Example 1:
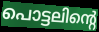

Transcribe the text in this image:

പൊട്ടലിന്റെ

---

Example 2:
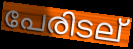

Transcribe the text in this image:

പേരിടല്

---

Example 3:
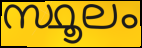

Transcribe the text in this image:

സ്ഥൂലം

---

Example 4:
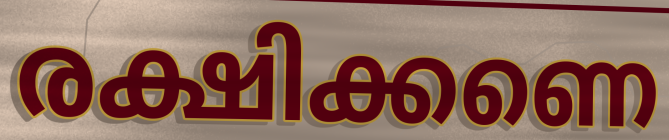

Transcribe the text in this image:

രക്ഷിക്കണെ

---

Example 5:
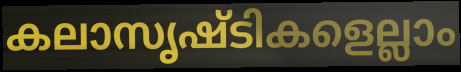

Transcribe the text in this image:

കലാസൃഷ്ടികളെല്ലാം